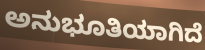
ಅನುಭೂತಿಯಾಗಿದೆ